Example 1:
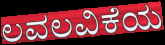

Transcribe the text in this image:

ಲವಲವಿಕೆಯ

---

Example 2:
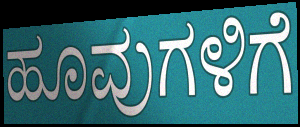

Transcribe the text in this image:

ಹೂವುಗಳಿಗೆ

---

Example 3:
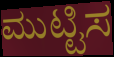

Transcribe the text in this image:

ಮುಟ್ಟಿಸ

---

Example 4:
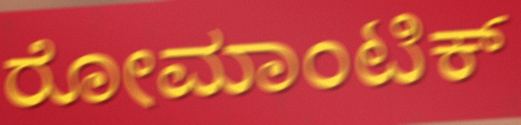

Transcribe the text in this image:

ರೋಮಾಂಟಿಕ್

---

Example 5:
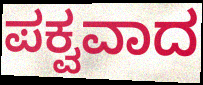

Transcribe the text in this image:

ಪಕ್ವವಾದ